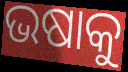
ଭଷାକୁ